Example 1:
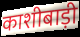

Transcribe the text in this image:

काशीबाड़ी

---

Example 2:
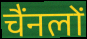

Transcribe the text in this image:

चैंनलों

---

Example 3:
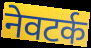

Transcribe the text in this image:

नेवटर्क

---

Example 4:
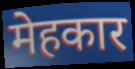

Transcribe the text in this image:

मेहकार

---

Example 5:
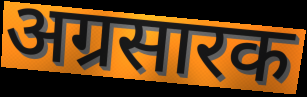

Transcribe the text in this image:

अग्रसारक